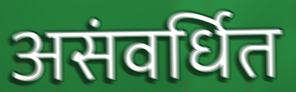
असंवर्धित